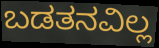
ಬಡತನವಿಲ್ಲ